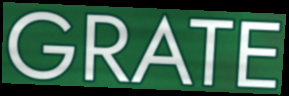
GRATE